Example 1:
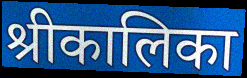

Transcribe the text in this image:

श्रीकालिका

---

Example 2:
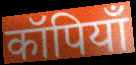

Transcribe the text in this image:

कॉपियाँ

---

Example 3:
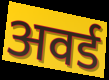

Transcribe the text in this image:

अवर्ड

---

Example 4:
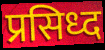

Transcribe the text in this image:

प्रसिध्द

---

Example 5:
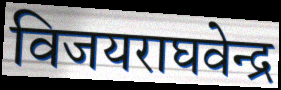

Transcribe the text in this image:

विजयराघवेन्द्र